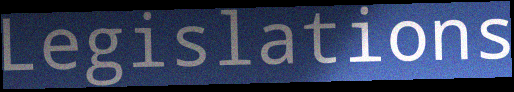
Legislations